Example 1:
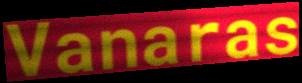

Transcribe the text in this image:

Vanaras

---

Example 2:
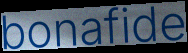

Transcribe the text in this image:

bonafide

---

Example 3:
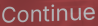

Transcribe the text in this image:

Continue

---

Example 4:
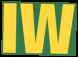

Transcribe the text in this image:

IW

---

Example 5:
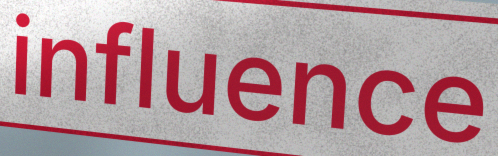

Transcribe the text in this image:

influence